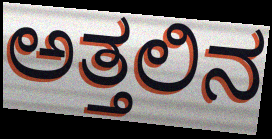
ಅತ್ತಲಿನ